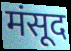
मंसूद